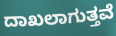
ದಾಖಲಾಗುತ್ತವೆ